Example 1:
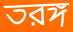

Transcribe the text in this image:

তরঙ্গ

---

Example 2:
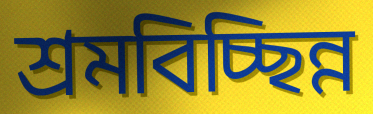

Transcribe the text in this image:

শ্রমবিচ্ছিন্ন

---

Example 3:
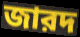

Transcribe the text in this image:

জারদ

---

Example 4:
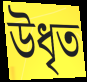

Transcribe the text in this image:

উধৃত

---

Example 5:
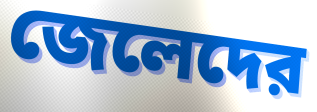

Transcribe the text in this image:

জেলেদের